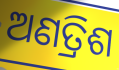
ଅଣତ୍ରିଶ